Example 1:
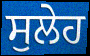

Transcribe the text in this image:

ਸੁਲੇਹ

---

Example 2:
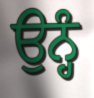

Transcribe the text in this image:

ਉਨ੍ਹੰ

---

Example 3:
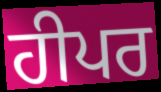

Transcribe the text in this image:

ਹੀਪਰ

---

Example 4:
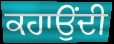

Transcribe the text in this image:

ਕਹਾਉਂਦੀ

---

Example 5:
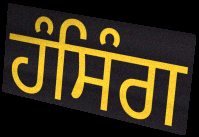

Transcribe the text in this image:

ਹੰਸਿੰਗ